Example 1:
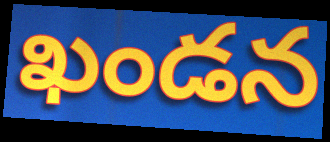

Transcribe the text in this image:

ఖండన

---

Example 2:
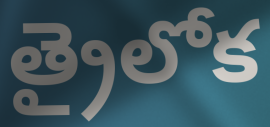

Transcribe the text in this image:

త్రైలోక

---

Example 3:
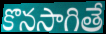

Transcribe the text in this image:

కొనసాగితే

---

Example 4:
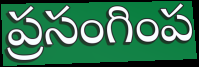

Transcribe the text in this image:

ప్రసంగింప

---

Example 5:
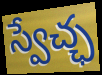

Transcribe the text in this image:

స్వేచ్ఛ